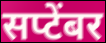
सप्टेंबर